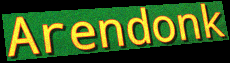
Arendonk